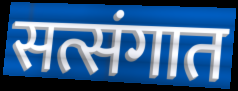
सत्संगात